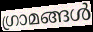
ഗ്രാമങ്ങൾ